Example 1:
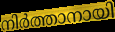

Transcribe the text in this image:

നിർത്താനായി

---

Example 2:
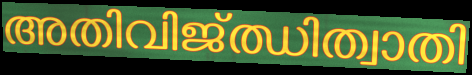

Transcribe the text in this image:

അതിവിജ്ഝിത്വാതി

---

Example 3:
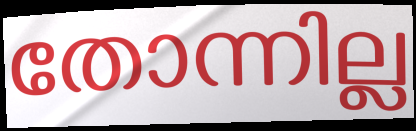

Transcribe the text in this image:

തോന്നില്ല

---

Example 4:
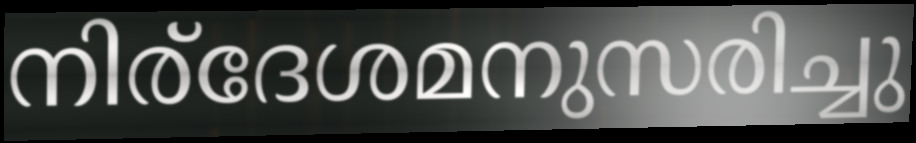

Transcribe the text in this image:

നിര്ദേശമനുസരിച്ചു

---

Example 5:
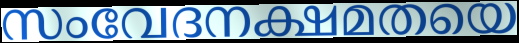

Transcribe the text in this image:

സംവേദനക്ഷമതയെ